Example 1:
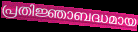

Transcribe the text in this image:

പ്രതിജ്ഞാബദ്ധമായ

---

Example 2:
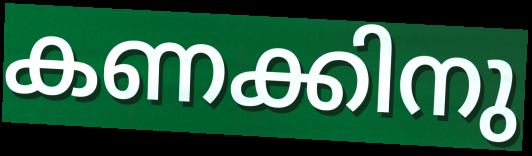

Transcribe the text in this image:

കണക്കിനു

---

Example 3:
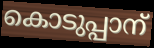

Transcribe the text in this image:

കൊടുപ്പാന്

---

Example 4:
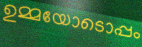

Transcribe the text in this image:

ഉമ്മയോടൊപ്പം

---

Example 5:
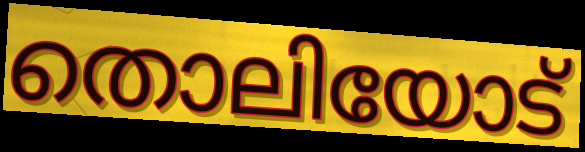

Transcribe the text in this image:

തൊലിയോട്